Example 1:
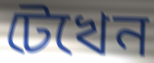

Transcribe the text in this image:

টেখেন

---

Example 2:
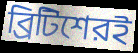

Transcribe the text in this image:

ব্রিটিশেরই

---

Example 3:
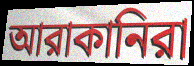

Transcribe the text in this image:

আরাকানিরা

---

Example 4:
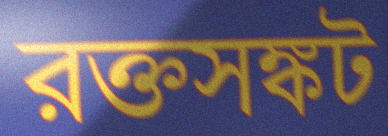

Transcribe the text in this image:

রক্তসঙ্কট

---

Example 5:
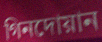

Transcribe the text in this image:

গিনদোয়ান